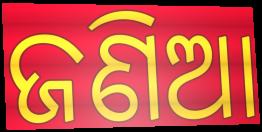
ଜଣିଆ